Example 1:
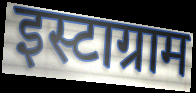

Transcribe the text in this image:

इस्टाग्राम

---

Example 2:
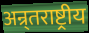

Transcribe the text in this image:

अन्र्तराष्ट्रीय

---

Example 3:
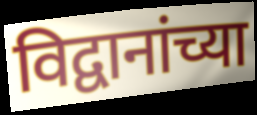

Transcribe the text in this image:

विद्वानांच्या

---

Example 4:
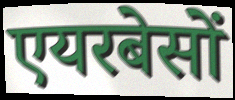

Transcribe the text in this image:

एयरबेसों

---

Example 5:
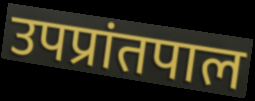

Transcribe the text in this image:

उपप्रांतपाल